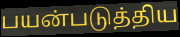
பயன்படுத்திய